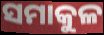
ସମାକୁଳ